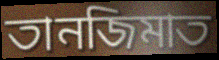
তানজিমাত